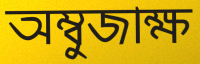
অম্বুজাক্ষ